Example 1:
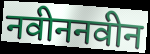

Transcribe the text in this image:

नवीननवीन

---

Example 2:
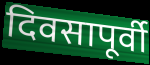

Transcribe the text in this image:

दिवसापूर्वी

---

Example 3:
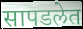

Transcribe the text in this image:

सापडलेत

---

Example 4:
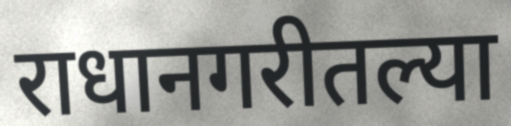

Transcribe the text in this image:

राधानगरीतल्या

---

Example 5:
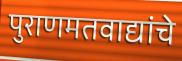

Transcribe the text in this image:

पुराणमतवाद्यांचे